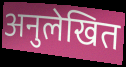
अनुलेखित